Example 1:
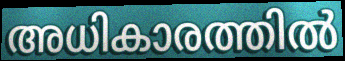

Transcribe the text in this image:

അധികാരത്തിൽ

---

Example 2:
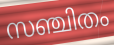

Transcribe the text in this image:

സഞ്ചിതം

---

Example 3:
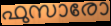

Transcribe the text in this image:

ഫുസാരോ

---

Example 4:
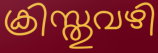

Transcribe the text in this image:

ക്രിസ്തുവഴി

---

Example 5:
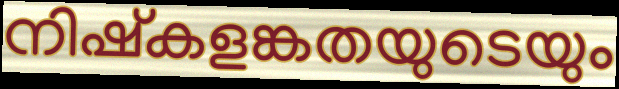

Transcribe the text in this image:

നിഷ്കളങ്കതയുടെയും